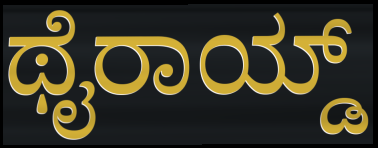
ಥೈರಾಯ್ಡ್